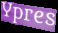
Ypres